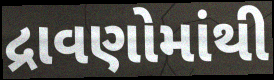
દ્રાવણોમાંથી